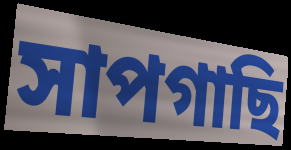
সাপগাছি